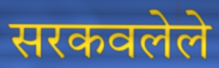
सरकवलेले